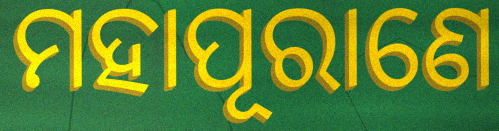
ମହାପୂରାଣେ